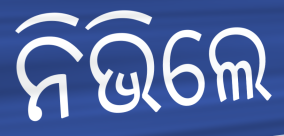
ନିଭିଲେ